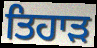
ਤਿਹਾੜ